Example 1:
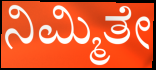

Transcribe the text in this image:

ನಿಮ್ಮಿತೇ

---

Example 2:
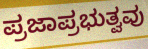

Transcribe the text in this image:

ಪ್ರಜಾಪ್ರಭುತ್ವವು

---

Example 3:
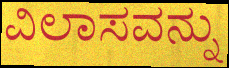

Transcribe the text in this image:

ವಿಲಾಸವನ್ನು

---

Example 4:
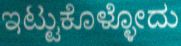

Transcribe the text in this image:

ಇಟ್ಟುಕೊಳ್ಳೋದು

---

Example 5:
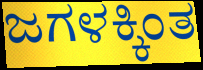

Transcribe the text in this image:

ಜಗಳಕ್ಕಿಂತ